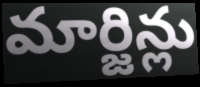
మార్జిన్లు